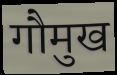
गौमुख